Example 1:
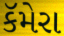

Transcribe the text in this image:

કૅમેરા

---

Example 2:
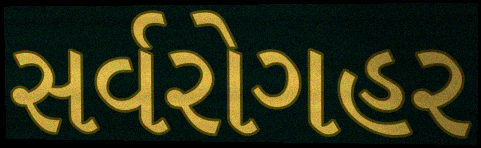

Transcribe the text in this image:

સર્વરોગહર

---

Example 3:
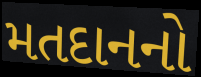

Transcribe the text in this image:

મતદાનનો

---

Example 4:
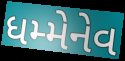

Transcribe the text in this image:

ધમ્મેનેવ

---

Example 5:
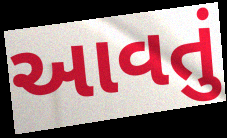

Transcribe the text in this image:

આવતું